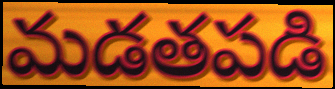
మడతపడి